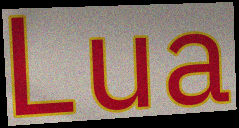
Lua